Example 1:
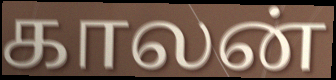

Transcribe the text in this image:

காலன்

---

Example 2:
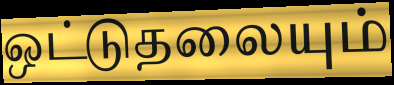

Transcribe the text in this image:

ஒட்டுதலையும்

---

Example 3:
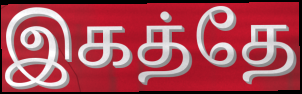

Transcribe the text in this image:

இகத்தே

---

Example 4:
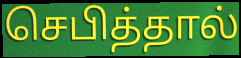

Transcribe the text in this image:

செபித்தால்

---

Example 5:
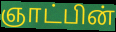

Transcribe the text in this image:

ஞாட்பின்